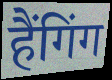
हैंगिंग